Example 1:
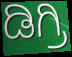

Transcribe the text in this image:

ಡಿಗ್ರಿ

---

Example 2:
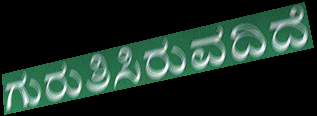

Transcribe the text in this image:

ಗುರುತಿಸಿರುವದಿದೆ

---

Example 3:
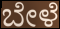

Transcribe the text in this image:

ಬೇಳೆ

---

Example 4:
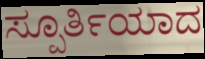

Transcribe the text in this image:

ಸ್ಪೂರ್ತಿಯಾದ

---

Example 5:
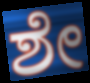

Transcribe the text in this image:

ಶೇ